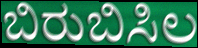
ಬಿರುಬಿಸಿಲ